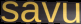
savu